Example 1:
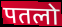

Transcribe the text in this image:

पतलो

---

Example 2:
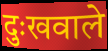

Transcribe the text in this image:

दुःखवाले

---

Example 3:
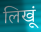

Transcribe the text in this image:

लिखूं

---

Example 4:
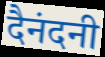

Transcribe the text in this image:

दैनंदनी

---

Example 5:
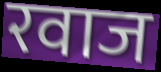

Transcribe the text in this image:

रवाज